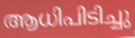
ആധിപിടിച്ചു